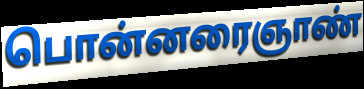
பொன்னரைஞாண்